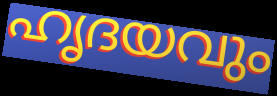
ഹൃദയവും